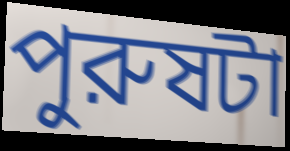
পুরুষটা